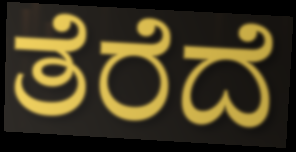
ತೆರೆದೆ